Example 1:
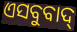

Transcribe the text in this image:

ଏସବୁବାଦ୍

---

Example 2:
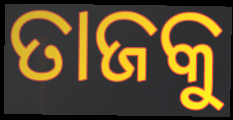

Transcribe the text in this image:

ତାଜକୁ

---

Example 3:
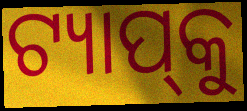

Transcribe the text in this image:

ଟ୍ୟାପ୍‌କୁ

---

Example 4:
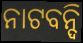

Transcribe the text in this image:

ନାଟବନ୍ଦି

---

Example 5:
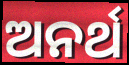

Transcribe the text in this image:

ଅନର୍ଥ